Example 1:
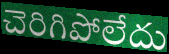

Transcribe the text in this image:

చెరిగిపోలేదు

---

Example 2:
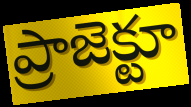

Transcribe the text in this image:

ప్రాజెక్టూ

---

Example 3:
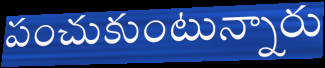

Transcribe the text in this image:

పంచుకుంటున్నారు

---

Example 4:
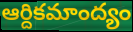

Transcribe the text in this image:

ఆర్దికమాంద్యం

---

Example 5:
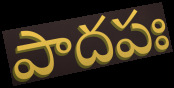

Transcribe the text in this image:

పాదపః